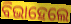
ବିଭାହେଲେ